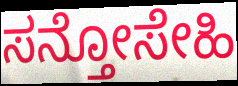
ಸನ್ತೋಸೇಹಿ